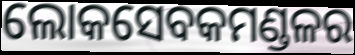
ଲୋକସେବକମଣ୍ଡଳର